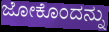
ಜೋಕೊಂದನ್ನು